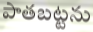
పాతబట్టను